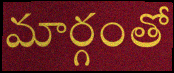
మార్గంతో